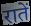
रातें